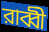
রাব্বী